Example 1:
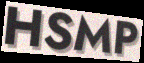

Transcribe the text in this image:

HSMP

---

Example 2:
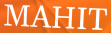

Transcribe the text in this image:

MAHIT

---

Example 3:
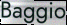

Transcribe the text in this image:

Baggio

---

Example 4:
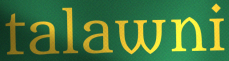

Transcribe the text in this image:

talawni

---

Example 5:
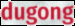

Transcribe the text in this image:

dugong